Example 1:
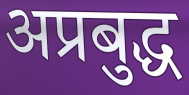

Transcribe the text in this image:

अप्रबुद्ध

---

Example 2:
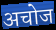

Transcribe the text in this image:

अचोज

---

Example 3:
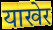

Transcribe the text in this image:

याखेर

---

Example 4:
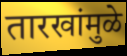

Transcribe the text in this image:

तारखांमुळे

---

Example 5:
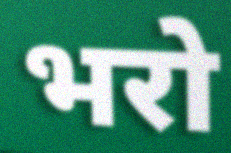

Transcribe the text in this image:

भरो